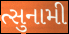
ત્સુનામી